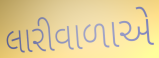
લારીવાળાએ